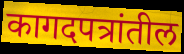
कागदपत्रांतील